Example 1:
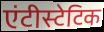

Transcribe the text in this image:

एंटीस्टेटिक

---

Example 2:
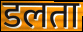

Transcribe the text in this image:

डलता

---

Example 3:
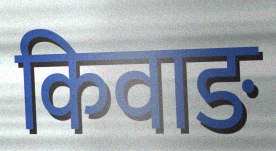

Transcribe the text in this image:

किवाङ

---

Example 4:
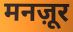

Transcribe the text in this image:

मनज़ूर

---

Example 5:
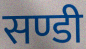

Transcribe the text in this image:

सण्डी